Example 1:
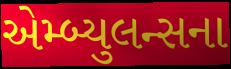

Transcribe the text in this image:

એમ્બ્યુલન્સના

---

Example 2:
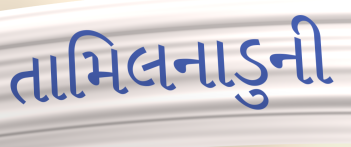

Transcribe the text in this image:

તામિલનાડુની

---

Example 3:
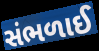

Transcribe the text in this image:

સંભળાઈ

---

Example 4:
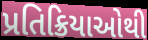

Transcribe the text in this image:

પ્રતિક્રિયાઓથી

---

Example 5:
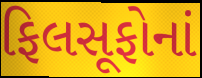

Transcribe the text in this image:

ફિલસૂફોનાં